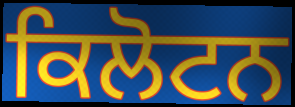
ਕਿਲੋਟਨ